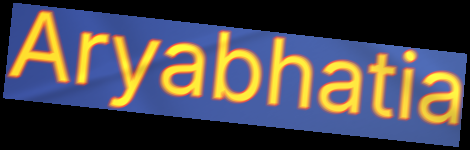
Aryabhatia